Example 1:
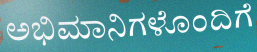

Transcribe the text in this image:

ಅಭಿಮಾನಿಗಳೊಂದಿಗೆ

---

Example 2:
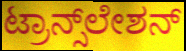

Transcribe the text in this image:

ಟ್ರಾನ್ಸ್‌ಲೇಶನ್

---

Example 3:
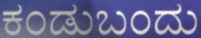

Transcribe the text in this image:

ಕಂಡುಬಂದು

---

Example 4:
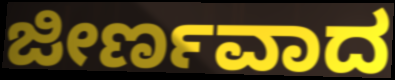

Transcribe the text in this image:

ಜೀರ್ಣವಾದ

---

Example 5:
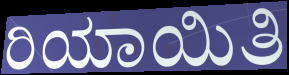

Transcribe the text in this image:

ರಿಯಾಯಿತಿ